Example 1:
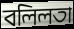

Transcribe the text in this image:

বলিলতা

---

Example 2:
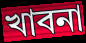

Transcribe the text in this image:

খাবনা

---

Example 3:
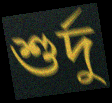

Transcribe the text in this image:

শুর্দু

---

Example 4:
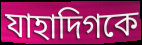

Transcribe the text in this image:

যাহাদিগকে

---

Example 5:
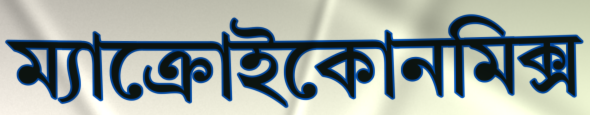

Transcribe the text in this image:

ম্যাক্রোইকোনমিক্স